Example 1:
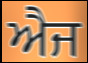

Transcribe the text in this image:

ਐਜ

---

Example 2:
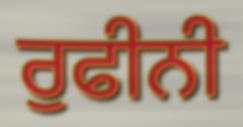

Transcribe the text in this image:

ਰੁਫੀਨੀ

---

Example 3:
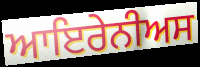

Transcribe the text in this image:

ਆਇਰੇਨੀਅਸ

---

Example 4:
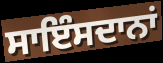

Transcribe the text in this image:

ਸਾਇੰਸਦਾਨਾਂ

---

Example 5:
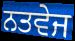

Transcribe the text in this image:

ਨਤਵੇਜ